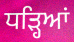
ਧੜ੍ਹਿਆਂ